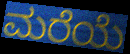
ಮರೆಯೆ